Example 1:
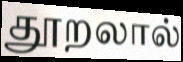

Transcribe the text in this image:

தூறலால்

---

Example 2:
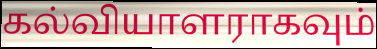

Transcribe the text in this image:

கல்வியாளராகவும்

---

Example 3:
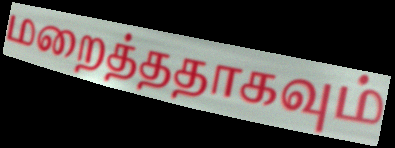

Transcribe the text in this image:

மறைத்ததாகவும்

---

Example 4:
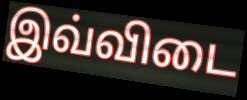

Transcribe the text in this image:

இவ்விடை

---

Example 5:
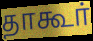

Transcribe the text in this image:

தாகூர்